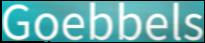
Goebbels